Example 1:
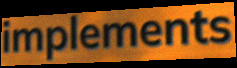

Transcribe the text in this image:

implements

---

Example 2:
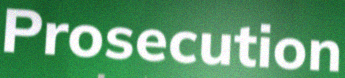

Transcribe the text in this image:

Prosecution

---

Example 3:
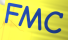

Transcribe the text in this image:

FMC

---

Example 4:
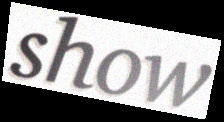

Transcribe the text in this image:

show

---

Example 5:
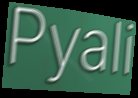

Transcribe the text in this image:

Pyali